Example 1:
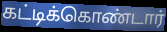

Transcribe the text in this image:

கட்டிக்கொண்டார்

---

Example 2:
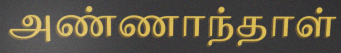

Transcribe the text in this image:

அண்ணாந்தாள்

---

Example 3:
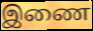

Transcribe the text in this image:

இணை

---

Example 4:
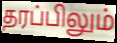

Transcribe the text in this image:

தரப்பிலும்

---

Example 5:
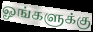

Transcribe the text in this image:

ஓங்களுக்கு